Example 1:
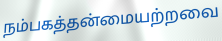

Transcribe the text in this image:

நம்பகத்தன்மையற்றவை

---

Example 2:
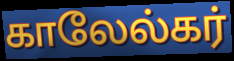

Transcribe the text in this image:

காலேல்கர்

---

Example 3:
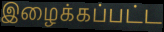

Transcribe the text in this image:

இழைக்கப்பட்ட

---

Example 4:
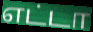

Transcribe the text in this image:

எட்டா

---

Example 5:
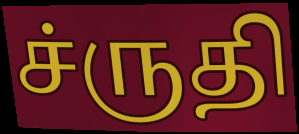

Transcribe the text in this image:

ச்ருதி